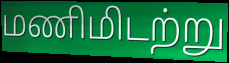
மணிமிடற்று